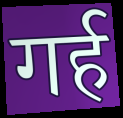
गर्ह